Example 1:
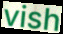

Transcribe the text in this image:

vish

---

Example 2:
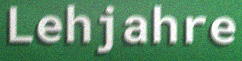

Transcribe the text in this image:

Lehjahre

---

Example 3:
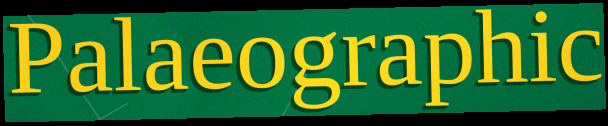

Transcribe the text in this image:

Palaeographic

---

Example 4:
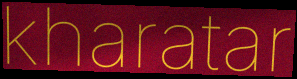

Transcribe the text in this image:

kharatar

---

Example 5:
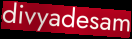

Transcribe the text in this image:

divyadesam